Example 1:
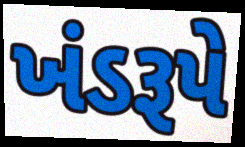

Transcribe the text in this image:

ખંડરૂપે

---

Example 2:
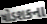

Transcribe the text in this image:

ષોડશકના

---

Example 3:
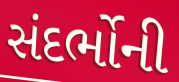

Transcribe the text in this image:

સંદર્ભોની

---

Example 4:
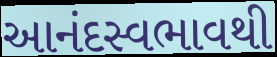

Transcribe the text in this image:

આનંદસ્વભાવથી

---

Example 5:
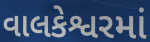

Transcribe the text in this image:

વાલકેશ્વરમાં